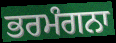
ਭਰਮੰਗਨਾ